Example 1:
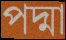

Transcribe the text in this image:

পদ্মা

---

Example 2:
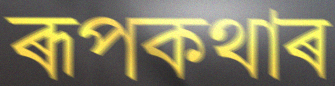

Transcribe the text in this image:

ৰূপকথাৰ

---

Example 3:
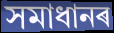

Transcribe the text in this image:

সমাধানৰ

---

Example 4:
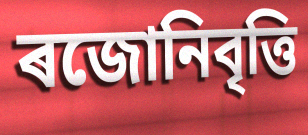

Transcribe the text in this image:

ৰজোনিবৃত্তি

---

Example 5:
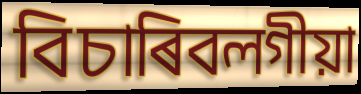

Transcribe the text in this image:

বিচাৰিবলগীয়া